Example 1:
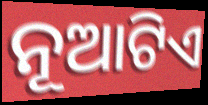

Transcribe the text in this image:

ନୂଆଟିଏ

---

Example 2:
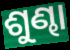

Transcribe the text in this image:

ଶୁଣ୍ଢା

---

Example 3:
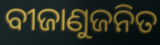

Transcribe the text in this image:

ବୀଜାଣୁଜନିତ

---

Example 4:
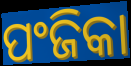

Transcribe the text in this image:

ପଂଜିକା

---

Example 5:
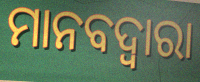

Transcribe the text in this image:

ମାନବଦ୍ୱାରା